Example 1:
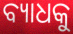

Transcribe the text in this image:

ବ୍ୟାଧକୁ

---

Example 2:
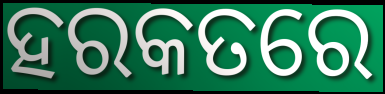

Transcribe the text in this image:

ହରକତରେ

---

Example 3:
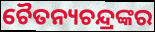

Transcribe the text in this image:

ଚୈତନ୍ୟଚନ୍ଦ୍ରଙ୍କର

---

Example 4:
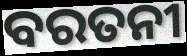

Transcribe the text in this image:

ବରତନୀ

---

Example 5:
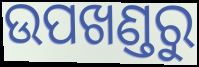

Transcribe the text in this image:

ଉପଖଣ୍ଡରୁ